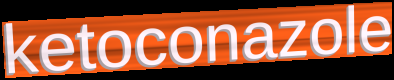
ketoconazole